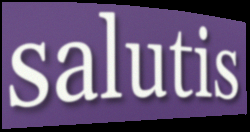
salutis